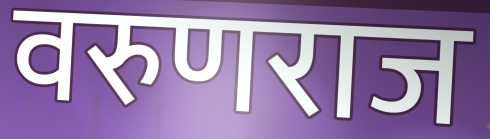
वरुणराज